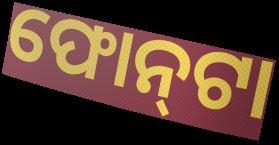
ଫୋନ୍‍ଟା